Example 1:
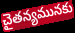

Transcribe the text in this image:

చైతన్యమునకు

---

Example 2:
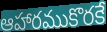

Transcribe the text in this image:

ఆహారముకొరకే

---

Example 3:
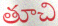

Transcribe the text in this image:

తూచి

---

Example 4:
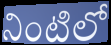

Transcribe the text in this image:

నింటిలో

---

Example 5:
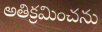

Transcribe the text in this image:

అతిక్రమించను